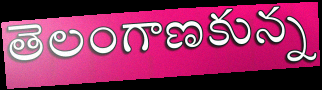
తెలంగాణకున్న